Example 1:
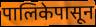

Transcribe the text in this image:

पालिकेपासून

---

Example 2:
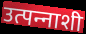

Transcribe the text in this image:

उत्पन्नाशी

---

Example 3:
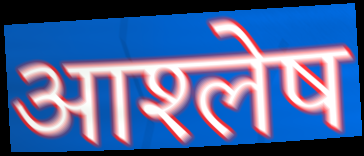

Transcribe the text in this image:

आश्लेष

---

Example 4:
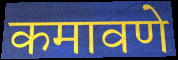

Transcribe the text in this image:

कमावणे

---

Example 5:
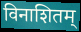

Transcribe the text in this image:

विनाशितम्